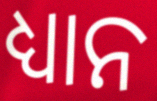
ଧ୍ୟାନ